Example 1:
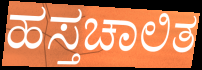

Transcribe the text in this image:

ಹಸ್ತಚಾಲಿತ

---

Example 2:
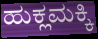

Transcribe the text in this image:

ಹುಕ್ಲಮಕ್ಕಿ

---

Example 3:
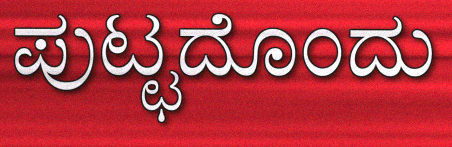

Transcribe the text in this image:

ಪುಟ್ಟದೊಂದು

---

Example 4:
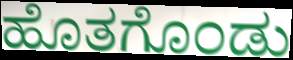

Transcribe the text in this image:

ಹೊತಗೊಂಡು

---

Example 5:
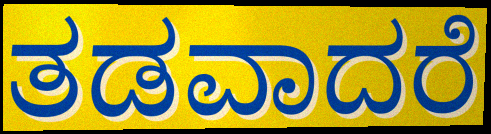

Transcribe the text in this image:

ತಡವಾದರೆ